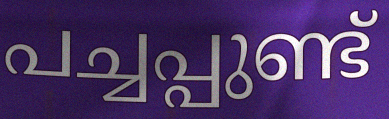
പച്ചപ്പുണ്ട്